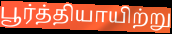
பூர்த்தியாயிற்று